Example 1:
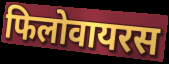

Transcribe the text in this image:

फिलोवायरस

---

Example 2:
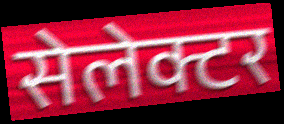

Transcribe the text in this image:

सेलेक्टर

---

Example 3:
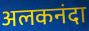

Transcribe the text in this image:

अलकनंदा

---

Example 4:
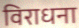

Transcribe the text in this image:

विराधना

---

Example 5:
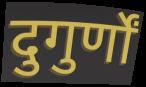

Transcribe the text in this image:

दुगुर्णों